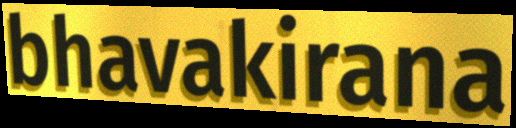
bhavakirana